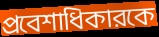
প্রবেশাধিকারকে